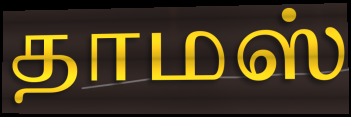
தாமஸ்